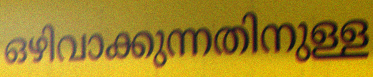
ഒഴിവാക്കുന്നതിനുള്ള